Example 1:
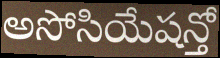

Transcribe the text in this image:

అసోసియేషన్తో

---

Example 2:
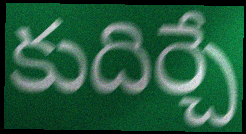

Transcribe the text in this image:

కుదిర్చే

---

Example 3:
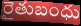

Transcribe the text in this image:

రైతుబంధు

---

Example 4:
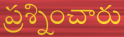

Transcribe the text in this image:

ప్రశ్నించారు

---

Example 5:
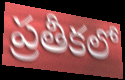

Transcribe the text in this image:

ప్రతీకలో